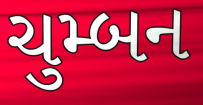
ચુમ્બન